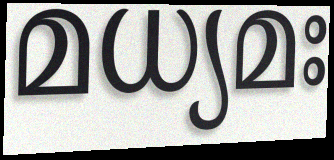
മധ്യമഃ